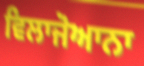
ਵਿਲਾਜੋਆਨਾ